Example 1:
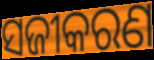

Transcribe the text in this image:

ସଜୀକରଣ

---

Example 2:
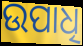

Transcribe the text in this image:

ଉପାଧି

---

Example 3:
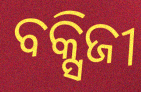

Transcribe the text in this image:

ବକ୍ସିଜୀ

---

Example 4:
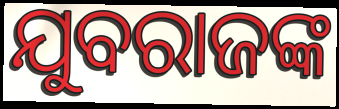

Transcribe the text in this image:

ଯୁବରାଜଙ୍କ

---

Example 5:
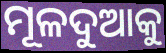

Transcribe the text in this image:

ମୂଳଦୁଆକୁ